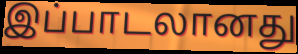
இப்பாடலானது